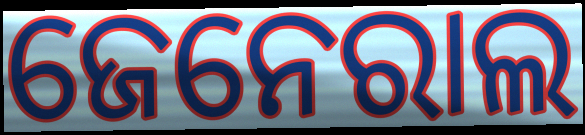
ଜେନେରାଲ